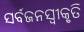
ସର୍ବଜନସ୍ୱୀକୃତି